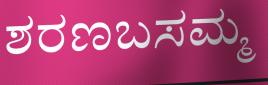
ಶರಣಬಸಮ್ಮ